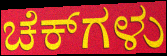
ಚೆಕ್‌ಗಳು